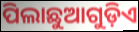
ପିଲାଛୁଆଗୁଡ଼ିଏ